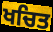
ਖਚਿਤ